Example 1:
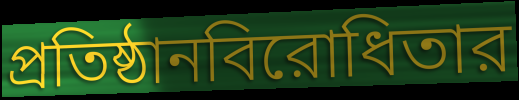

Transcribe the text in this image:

প্রতিষ্ঠানবিরোধিতার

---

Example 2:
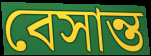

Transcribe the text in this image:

বেসান্ত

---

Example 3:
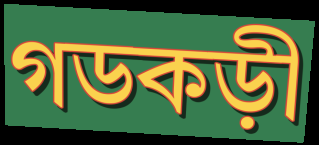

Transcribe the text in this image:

গডকড়ী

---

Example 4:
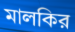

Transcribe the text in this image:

মালকির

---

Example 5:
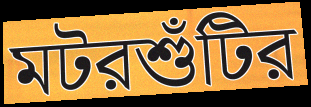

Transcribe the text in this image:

মটরশুঁটির